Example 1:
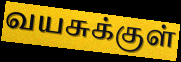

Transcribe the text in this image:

வயசுக்குள்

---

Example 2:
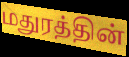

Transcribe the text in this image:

மதுரத்தின்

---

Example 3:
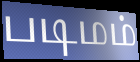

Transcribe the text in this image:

படிமம்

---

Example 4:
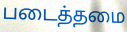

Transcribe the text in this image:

படைத்தமை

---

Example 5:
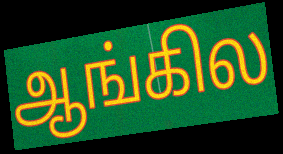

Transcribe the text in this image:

ஆங்கில